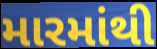
મારમાંથી